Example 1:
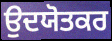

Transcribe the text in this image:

ਉਦਯੋਤਕਰ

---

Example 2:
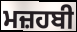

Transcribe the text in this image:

ਮਜ਼ਹਬੀ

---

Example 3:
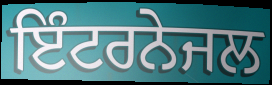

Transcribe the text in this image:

ਇੰਟਰਨੇਜਲ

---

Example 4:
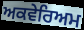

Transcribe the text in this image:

ਅਕਵੇਰਿਅਮ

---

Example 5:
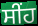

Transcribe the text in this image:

ਸੀਂਹ